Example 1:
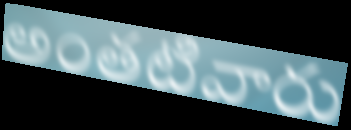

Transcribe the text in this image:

అంతటివారు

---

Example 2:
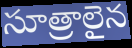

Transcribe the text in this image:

సూత్రాలైన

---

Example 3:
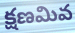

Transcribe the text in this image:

క్షణమివ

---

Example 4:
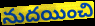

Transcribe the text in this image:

నుదయించి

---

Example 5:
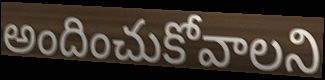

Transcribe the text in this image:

అందించుకోవాలని